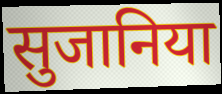
सुजानिया